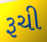
રૂચી